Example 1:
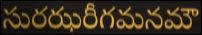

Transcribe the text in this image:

సురఝరీగమనమౌ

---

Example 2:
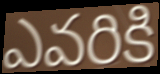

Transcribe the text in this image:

ఎవరికి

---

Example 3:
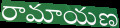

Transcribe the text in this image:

రామాయణ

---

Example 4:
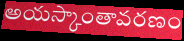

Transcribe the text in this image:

అయస్కాంతావరణం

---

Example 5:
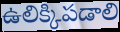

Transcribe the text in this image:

ఉలిక్కిపడాలి